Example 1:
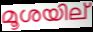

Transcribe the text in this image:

മൂശയില്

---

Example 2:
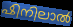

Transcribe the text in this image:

ഷിനിലാൽ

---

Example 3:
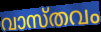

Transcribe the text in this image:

വാസ്തവം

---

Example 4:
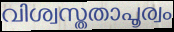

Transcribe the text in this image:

വിശ്വസ്തതാപൂര്വം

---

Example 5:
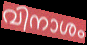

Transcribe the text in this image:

വിനാശം